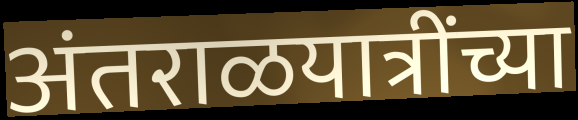
अंतराळयात्रींच्या